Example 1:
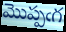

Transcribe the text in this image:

మొప్పఁగ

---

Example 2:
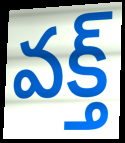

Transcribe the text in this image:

వక్త్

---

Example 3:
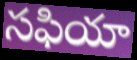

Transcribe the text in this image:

సఫియా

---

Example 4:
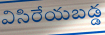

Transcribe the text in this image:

విసిరేయబడ్డ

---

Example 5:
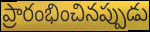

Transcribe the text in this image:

ప్రారంభించినప్పుడు